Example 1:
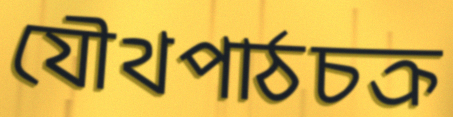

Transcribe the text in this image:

যৌথপাঠচক্র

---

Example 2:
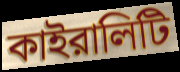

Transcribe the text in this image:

কাইরালিটি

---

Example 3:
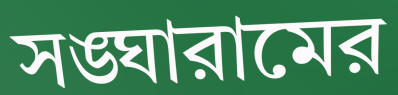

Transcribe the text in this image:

সঙ্ঘারামের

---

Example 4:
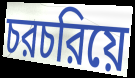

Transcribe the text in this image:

চরচরিয়ে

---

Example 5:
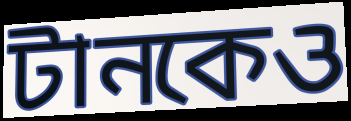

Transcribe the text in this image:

টানকেও